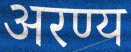
अरण्य